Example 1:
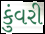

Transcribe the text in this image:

કુંવરી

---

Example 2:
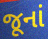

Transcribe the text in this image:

જૂનાં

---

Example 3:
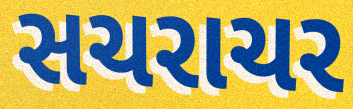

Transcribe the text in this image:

સચરાચર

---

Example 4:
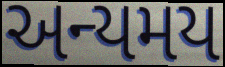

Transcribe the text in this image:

અન્યમય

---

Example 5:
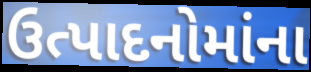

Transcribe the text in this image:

ઉત્પાદનોમાંના